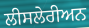
ਲੀਸਲੇਰੀਅਨ